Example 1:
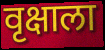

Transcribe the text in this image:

वृक्षाला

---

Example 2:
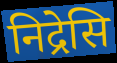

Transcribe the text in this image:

निद्रेसि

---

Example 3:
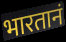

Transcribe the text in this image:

भारतानं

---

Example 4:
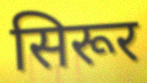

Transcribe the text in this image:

सिरूर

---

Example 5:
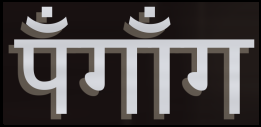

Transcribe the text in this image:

पँगाँग